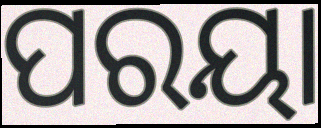
ପରୟା